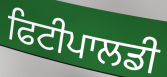
ਫਿਟੀਪਾਲਡੀ